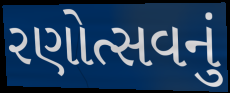
રણોત્સવનું